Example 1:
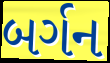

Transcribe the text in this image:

બર્ગન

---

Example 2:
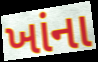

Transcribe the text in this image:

ખાંના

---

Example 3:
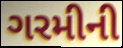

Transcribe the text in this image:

ગરમીની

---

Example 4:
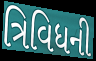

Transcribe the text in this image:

ત્રિવિધની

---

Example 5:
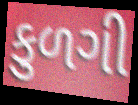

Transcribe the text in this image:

કુળગી